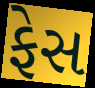
ફેસ